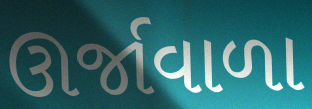
ઊર્જાવાળા